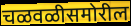
चळवळीसमोरील